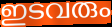
ഇടവരും